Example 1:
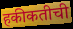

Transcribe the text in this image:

हकीकतीची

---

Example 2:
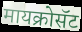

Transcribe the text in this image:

मायक्रोसॅट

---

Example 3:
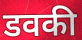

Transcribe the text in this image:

डवकी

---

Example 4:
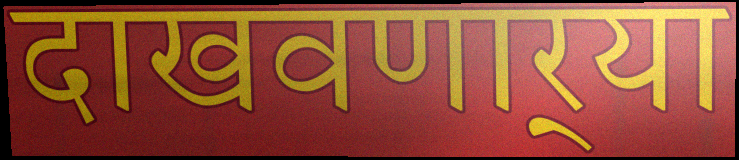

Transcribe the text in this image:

दाखवणार्या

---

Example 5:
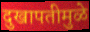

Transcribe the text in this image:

दुखापतीमुळे